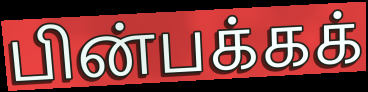
பின்பக்கக்